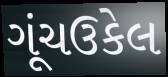
ગૂંચઉકેલ